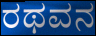
ರಥವನ